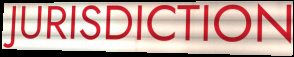
JURISDICTION